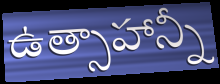
ఉత్సాహాన్నీ